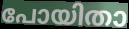
പോയിതാ